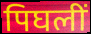
पिघलीं